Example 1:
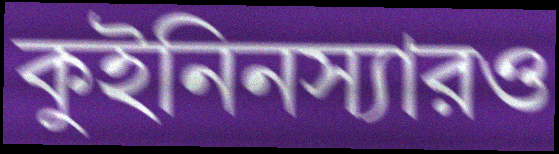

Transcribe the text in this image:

কুইনিনস্যারও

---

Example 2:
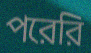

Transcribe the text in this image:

পরেরি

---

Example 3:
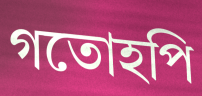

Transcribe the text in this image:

গতোহপি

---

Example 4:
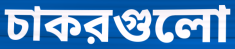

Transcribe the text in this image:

চাকরগুলো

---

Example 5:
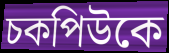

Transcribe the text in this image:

চকপিউকে